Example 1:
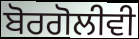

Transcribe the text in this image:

ਬੋਰਗੋਲੀਵੀ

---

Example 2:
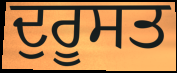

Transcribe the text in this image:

ਦੁਰੂਸਤ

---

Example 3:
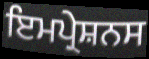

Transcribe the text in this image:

ਇਮਪ੍ਰੇਸ਼ਨਸ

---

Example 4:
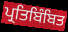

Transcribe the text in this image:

ਪ੍ਰਤਿਬਿੰਬਿਤ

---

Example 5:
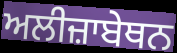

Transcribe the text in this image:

ਅਲੀਜ਼ਾਬੇਥਨ